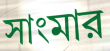
সাংমার